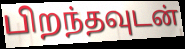
பிறந்தவுடன்